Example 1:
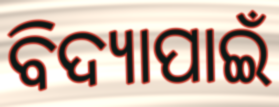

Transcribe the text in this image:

ବିଦ୍ୟାପାଇଁ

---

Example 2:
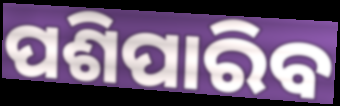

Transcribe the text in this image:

ପଶିପାରିବ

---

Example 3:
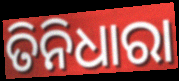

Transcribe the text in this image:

ତିନିଧାରା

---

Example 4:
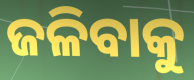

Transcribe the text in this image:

ଜଳିବାକୁ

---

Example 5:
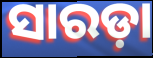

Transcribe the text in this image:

ସାରଡ଼ା